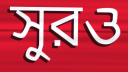
সুরও